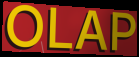
OLAP